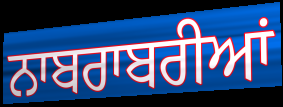
ਨਾਬਰਾਬਰੀਆਂ